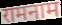
रामनाम